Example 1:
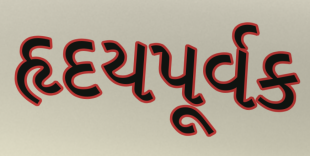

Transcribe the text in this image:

હૃદયપૂર્વક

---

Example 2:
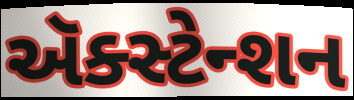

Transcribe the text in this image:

ઍક્સ્ટેન્શન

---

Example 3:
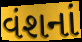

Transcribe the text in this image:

વંશનાં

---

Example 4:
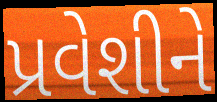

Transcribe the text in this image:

પ્રવેશીને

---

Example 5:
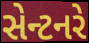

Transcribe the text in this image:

સેન્ટનરે